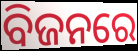
ବିଜନରେ